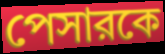
পেসারকে